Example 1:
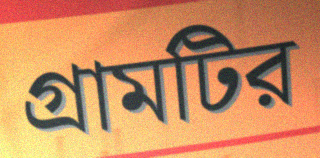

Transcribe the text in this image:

গ্রামটির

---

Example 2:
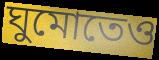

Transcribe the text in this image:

ঘুমোতেও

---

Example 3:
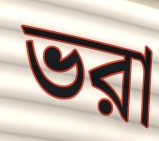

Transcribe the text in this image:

ভরা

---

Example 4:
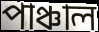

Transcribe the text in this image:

পাঞ্চাল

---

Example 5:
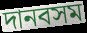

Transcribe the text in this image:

দানবসম